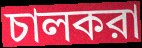
চালকরা